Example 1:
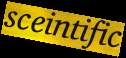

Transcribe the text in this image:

sceintific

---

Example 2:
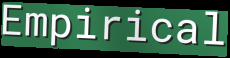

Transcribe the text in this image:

Empirical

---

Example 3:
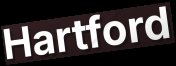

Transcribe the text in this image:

Hartford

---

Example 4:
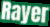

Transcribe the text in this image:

Rayer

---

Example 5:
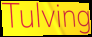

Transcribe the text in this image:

Tulving